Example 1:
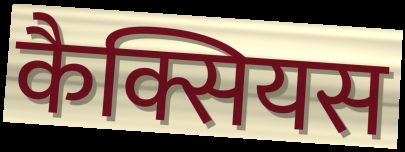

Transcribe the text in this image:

कैक्सियस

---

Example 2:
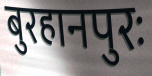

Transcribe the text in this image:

बुरहानपुरः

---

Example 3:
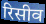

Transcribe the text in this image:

रिसीव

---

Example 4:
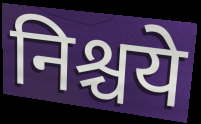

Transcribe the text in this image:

निश्चये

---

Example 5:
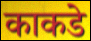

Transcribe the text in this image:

काकडे